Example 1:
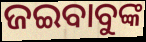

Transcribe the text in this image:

ଜଇବାବୁଙ୍କ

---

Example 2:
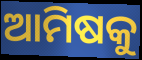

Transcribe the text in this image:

ଆମିଷକୁ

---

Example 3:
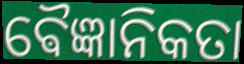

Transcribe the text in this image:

ଵୈଜ୍ଞାନିକତା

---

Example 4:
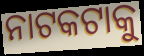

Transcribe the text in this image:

ନାଟକଟାକୁ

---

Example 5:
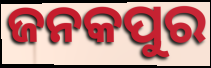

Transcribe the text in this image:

ଜନକପୁର